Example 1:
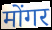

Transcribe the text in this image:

मोंगर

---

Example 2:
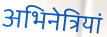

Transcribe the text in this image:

अभिनेत्रियां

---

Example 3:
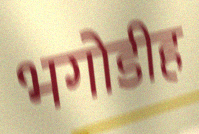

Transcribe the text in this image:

भगोडीह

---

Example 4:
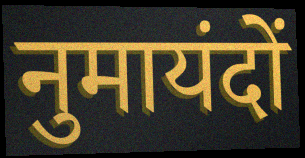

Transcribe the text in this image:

नुमायंदों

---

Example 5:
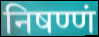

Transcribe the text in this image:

निषण्णं